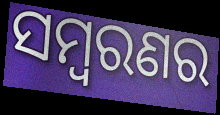
ସମ୍ବରଣର